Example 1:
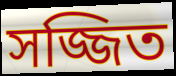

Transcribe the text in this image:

সজ্জিত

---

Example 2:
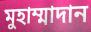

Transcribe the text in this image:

মুহাম্মাদান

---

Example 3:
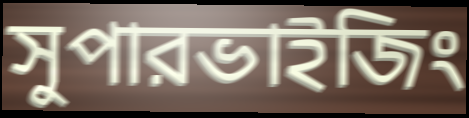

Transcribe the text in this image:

সুপারভাইজিং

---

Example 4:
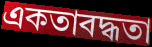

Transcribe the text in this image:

একতাবদ্ধতা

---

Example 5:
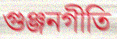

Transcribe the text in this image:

গুঞ্জনগীতি